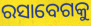
ରସାବେଗକୁ